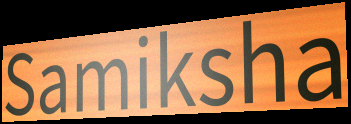
Samiksha